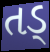
તડ્